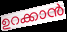
ഉറക്കാൻ